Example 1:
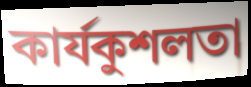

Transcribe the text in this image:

কাৰ্যকুশলতা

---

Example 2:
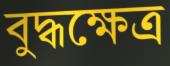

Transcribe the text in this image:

বুদ্ধক্ষেত্ৰ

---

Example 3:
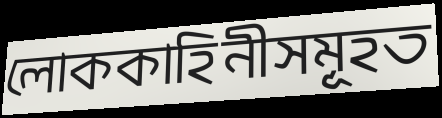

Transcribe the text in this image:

লোককাহিনীসমূহত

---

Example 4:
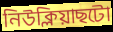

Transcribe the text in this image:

নিউক্লিয়াছটো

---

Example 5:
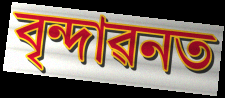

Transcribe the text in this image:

বৃন্দাৱনত